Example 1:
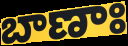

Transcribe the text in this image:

బాణాః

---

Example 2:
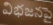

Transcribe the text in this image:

విభజనపై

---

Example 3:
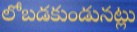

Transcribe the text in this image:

లోబడకుండునట్లు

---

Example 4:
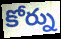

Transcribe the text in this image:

కోర్ను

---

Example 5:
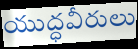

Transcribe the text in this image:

యుద్ధవీరులు